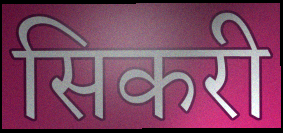
सिकरी